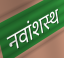
नवांशस्थ